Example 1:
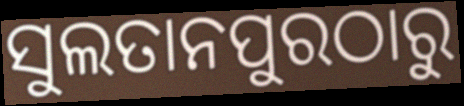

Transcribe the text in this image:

ସୁଲତାନପୁରଠାରୁ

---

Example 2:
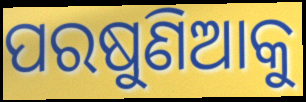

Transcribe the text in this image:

ପରଷୁଣିଆକୁ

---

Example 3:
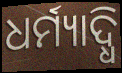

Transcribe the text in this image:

ଧର୍ମ୍ୟାଦ୍ଧି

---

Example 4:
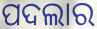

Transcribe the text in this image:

ପଦଲାର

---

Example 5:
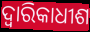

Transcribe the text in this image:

ଦ୍ୱାରିକାଧୀଶ